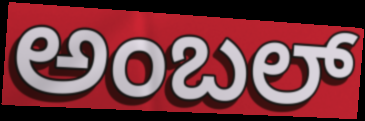
ಅಂಬಲ್